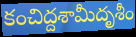
కంచిద్దశామీదృశీం